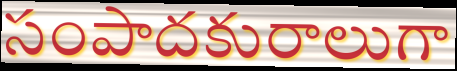
సంపాదకురాలుగా